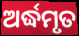
ଅର୍ଦ୍ଧମୃତ